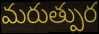
మరుత్పుర